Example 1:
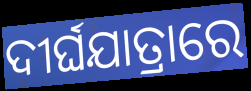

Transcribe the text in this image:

ଦୀର୍ଘଯାତ୍ରାରେ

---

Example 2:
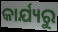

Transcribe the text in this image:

କାର୍ଯ୍ୟରୁ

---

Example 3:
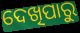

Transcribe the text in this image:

ଦେଖିପାରୁ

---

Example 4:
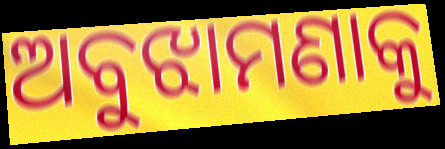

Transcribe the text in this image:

ଅବୁଝାମଣାକୁ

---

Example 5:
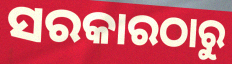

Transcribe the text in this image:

ସରକାରଠାରୁ